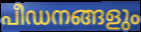
പീഡനങ്ങളും